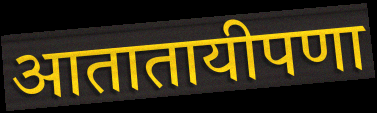
आतातायीपणा